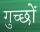
गुच्छों